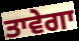
ਤਾਵੇਗਾ